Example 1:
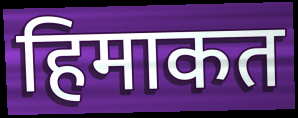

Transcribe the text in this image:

हिमाकत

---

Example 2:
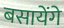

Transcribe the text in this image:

बसायेंगे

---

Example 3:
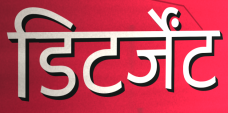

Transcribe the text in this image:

डिटर्जेंट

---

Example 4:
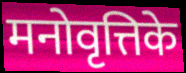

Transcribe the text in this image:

मनोवृत्तिके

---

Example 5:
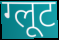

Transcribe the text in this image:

ग्लूट